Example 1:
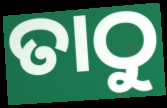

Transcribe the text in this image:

ତାଠୁ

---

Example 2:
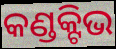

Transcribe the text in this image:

କଣ୍ଡକ୍ଟିଭ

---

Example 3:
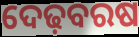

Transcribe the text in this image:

ଦେଢ଼ବରଷ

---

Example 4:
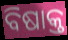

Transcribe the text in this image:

ବିଷାକ୍ତ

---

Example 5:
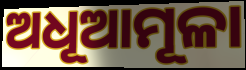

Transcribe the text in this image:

ଅଧୂଆମୂଳା